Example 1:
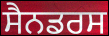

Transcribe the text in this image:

ਸੈਨਡਰਸ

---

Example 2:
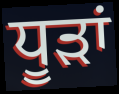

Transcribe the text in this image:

ਧੂਡ਼ਾਂ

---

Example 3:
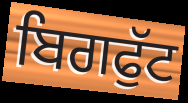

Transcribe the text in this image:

ਬਿਗਫੁੱਟ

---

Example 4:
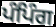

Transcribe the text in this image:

ਪੰਪਿੰਗ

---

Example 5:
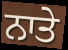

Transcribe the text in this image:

ਨਾਤੇ